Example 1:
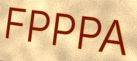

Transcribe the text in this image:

FPPPA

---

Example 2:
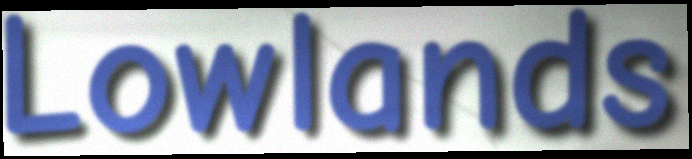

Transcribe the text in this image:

Lowlands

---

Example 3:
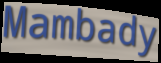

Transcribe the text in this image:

Mambady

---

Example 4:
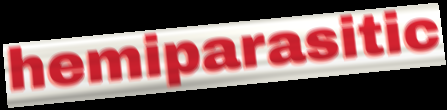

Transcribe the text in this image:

hemiparasitic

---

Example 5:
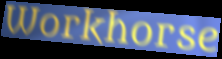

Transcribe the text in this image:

Workhorse